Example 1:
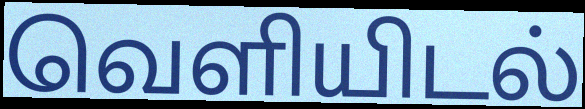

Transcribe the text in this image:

வெளியிடல்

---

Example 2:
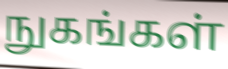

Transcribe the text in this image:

நுகங்கள்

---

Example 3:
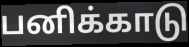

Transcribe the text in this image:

பனிக்காடு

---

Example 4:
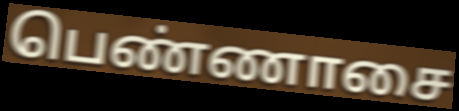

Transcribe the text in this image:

பெண்ணாசை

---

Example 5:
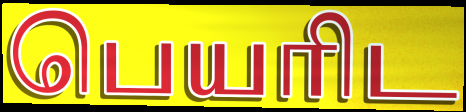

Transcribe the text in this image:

பெயரிட